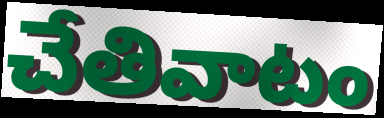
చేతివాటం